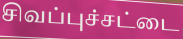
சிவப்புச்சட்டை